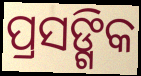
ପ୍ରସଙ୍ଗିକ